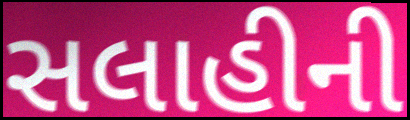
સલાહીની